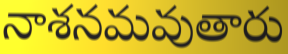
నాశనమవుతారు